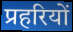
प्रहरियों